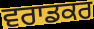
ਵਰਾਡਕਰ